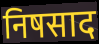
निषसाद